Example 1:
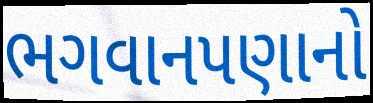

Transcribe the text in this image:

ભગવાનપણાનો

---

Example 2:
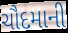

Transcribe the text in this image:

ચૌદમાની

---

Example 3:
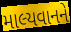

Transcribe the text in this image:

માલ્યવાનને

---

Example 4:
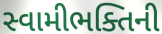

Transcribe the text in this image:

સ્વામીભક્તિની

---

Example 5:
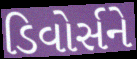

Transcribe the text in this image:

ડિવોર્સને